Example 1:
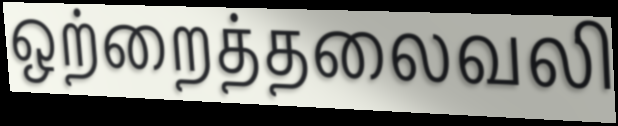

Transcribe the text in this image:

ஒற்றைத்தலைவலி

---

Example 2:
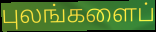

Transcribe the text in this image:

புலங்களைப்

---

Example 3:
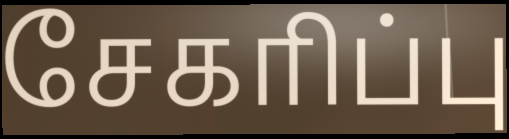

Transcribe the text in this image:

சேகரிப்பு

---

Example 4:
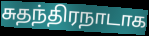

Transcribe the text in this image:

சுதந்திரநாடாக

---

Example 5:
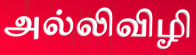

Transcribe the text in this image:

அல்லிவிழி